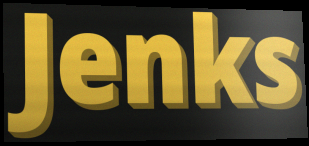
Jenks